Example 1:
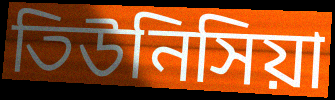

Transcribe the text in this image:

তিউনিসিয়া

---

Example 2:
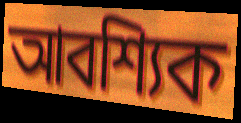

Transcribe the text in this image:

আবশ্যিক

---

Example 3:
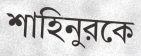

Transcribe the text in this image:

শাহিনুরকে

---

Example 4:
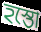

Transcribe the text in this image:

হস্তো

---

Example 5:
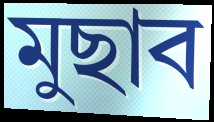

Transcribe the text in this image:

মুছাব